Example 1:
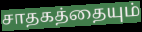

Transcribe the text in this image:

சாதகத்தையும்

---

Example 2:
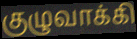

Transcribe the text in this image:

குழுவாக்கி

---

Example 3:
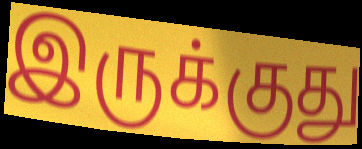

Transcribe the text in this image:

இருக்குது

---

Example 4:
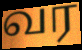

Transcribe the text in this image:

வர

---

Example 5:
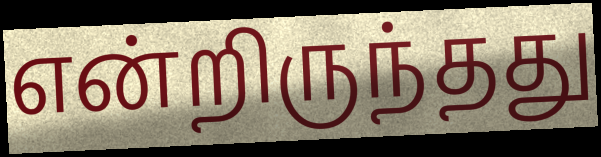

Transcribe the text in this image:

என்றிருந்தது